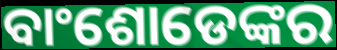
ବାଂଶୋଡେଙ୍କର